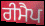
ਰੀਮੈਪ